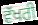
ਵੱਖਰੀ